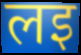
लइ